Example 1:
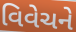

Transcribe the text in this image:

વિવેચને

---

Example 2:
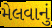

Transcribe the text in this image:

મેલવાનું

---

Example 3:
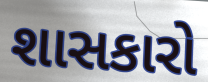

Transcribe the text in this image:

શાસકારો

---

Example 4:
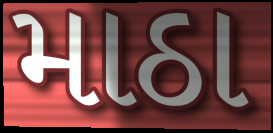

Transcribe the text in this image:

માઠા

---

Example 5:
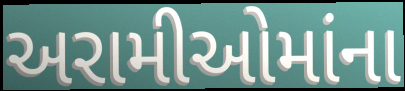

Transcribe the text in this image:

અરામીઓમાંના